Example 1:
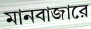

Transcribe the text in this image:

মানবাজারে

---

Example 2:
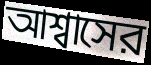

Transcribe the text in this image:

আশ্বাসের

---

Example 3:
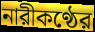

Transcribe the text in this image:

নারীকণ্ঠের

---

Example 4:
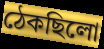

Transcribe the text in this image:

ঠেকছিলো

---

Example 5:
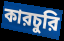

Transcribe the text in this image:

কারচুরি